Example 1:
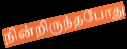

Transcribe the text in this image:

நின்றிருந்தபோது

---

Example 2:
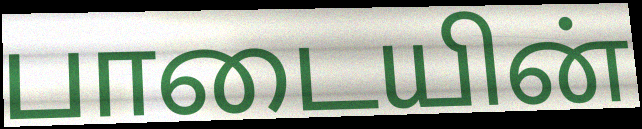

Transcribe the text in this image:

பாடையின்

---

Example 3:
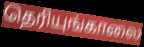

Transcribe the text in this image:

தெரியுங்காலை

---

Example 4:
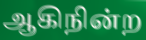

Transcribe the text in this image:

ஆகிநின்ற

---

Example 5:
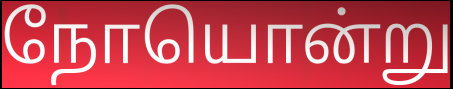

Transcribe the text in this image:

நோயொன்று